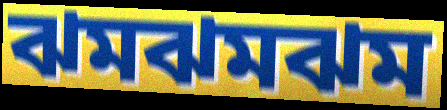
ঝমঝমঝম